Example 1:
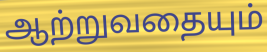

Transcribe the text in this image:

ஆற்றுவதையும்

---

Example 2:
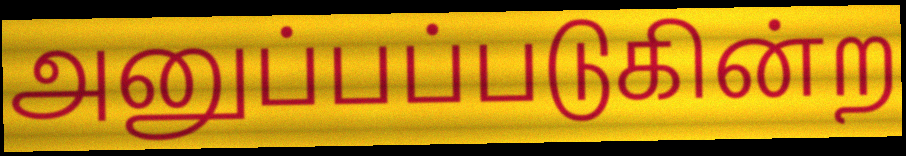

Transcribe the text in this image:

அனுப்பப்படுகின்ற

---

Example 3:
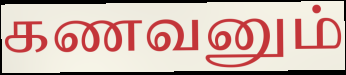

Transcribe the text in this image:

கணவனும்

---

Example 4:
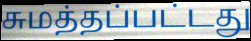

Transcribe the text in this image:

சுமத்தப்பட்டது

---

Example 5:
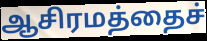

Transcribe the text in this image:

ஆசிரமத்தைச்